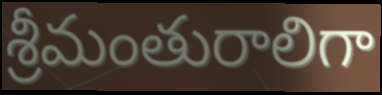
శ్రీమంతురాలిగా